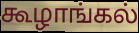
கூழாங்கல்